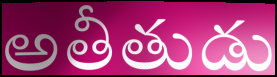
అతీతుడు